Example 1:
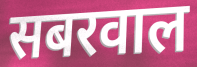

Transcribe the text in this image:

सबरवाल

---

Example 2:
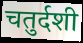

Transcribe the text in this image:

चतुर्दशी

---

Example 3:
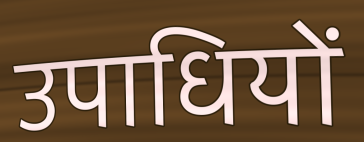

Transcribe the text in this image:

उपाधियों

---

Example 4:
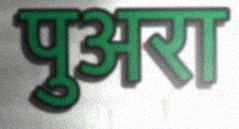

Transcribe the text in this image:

पुअरा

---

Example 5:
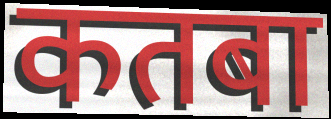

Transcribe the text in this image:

कतबा